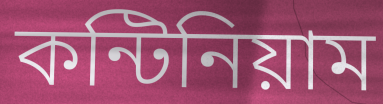
কন্টিনিয়াম